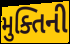
મુક્તિની